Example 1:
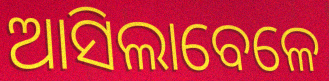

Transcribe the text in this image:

ଆସିଲାବେଳେ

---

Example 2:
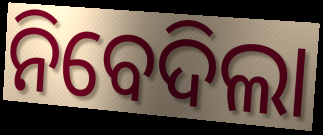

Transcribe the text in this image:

ନିବେଦିଲା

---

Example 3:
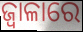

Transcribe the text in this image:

ଜ୍ଵାଳାରେ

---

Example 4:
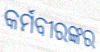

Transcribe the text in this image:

କର୍ମବୀରଙ୍କର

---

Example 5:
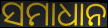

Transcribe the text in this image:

ସମାଧାନ